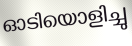
ഓടിയൊളിച്ചു